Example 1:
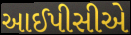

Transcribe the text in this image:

આઈપીસીએ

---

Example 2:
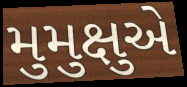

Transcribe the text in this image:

મુમુક્ષુએ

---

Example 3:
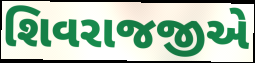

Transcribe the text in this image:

શિવરાજજીએ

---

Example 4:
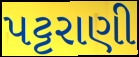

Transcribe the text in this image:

પટ્ટરાણી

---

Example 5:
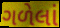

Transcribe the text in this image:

ગળેલાં